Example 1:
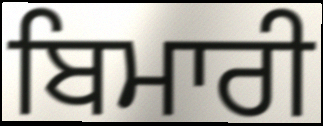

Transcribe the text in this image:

ਬਿਮਾਰੀ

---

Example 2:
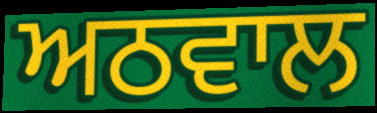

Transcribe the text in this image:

ਅਠਵਾਲ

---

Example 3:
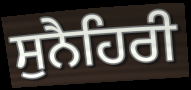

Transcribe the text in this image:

ਸੁਨੈਹਿਰੀ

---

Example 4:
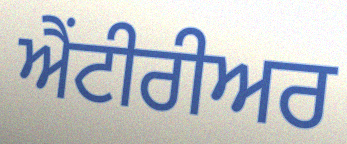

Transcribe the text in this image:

ਐਂਟੀਰੀਅਰ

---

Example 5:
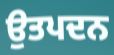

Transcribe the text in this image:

ਉਤਪਦਨ